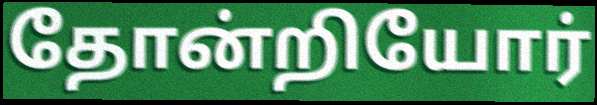
தோன்றியோர்